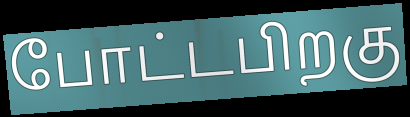
போட்டபிறகு